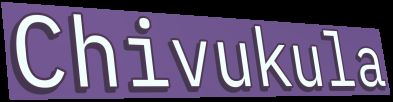
Chivukula